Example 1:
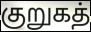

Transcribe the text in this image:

குறுகத்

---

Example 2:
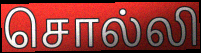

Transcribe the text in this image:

சொல்லி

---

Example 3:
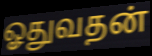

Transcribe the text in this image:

ஓதுவதன்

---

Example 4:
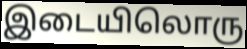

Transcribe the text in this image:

இடையிலொரு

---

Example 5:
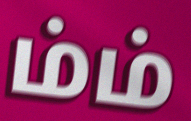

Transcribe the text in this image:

ம்ம்